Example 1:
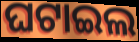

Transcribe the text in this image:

ଘଟାଇଲ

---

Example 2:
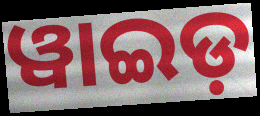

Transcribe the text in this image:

ୱାଇଡ଼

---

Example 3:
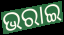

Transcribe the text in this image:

ଭରାଇ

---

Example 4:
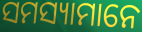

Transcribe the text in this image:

ସମସ୍ୟାମାନେ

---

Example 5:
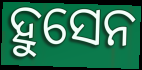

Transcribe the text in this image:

ହୁସେନ